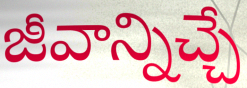
జీవాన్నిచ్చే